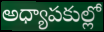
అధ్యాపకుల్లో